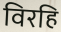
विरहि